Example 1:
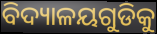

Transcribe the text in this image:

ବିଦ୍ୟାଳୟଗୁଡିକୁ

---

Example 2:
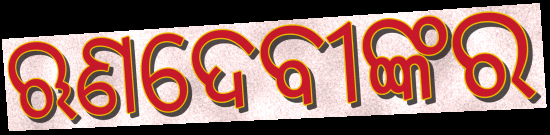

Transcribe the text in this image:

ଋଣଦେବୀଙ୍କର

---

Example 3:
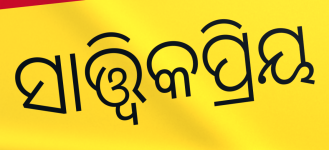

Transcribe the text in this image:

ସାତ୍ତ୍ଵିକପ୍ରିୟ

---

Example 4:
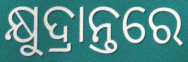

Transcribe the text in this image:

କ୍ଷୁଦ୍ରାନ୍ତରେ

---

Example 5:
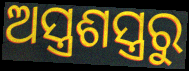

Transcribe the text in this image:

ଅସ୍ତ୍ରଶସ୍ତ୍ରରୁ